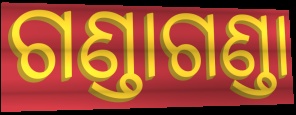
ଗଣ୍ଡାଗଣ୍ଡା